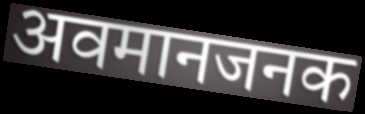
अवमानजनक